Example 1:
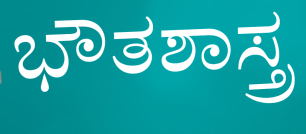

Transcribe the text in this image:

ಭೌತಶಾಸ್ತ್ರ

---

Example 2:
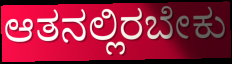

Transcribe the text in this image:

ಆತನಲ್ಲಿರಬೇಕು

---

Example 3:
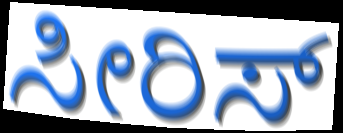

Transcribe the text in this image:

ಸೀರಿಸ್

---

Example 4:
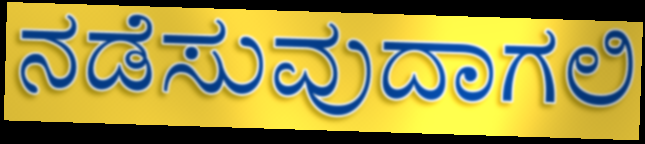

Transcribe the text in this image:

ನಡೆಸುವುದಾಗಲಿ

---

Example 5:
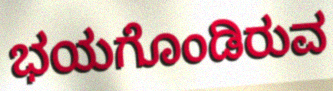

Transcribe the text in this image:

ಭಯಗೊಂಡಿರುವ